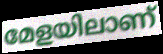
മേളയിലാണ്